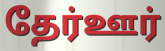
தேர்ஊர்